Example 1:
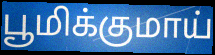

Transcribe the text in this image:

பூமிக்குமாய்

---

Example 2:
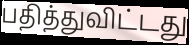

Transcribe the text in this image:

பதித்துவிட்டது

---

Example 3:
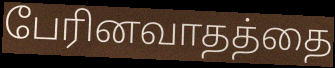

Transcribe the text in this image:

பேரினவாதத்தை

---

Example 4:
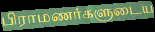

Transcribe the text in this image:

பிராமணர்களுடைய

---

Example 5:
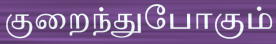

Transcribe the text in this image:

குறைந்துபோகும்